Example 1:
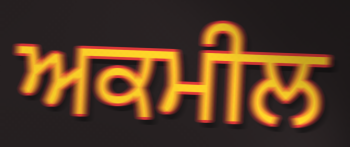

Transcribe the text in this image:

ਅਕਮੀਲ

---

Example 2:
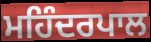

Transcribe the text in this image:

ਮਹਿੰਦਰਪਾਲ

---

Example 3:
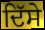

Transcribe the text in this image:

ਦਿੱਸੇ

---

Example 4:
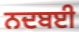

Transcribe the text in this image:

ਨਦਬਈ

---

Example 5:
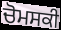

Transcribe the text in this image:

ਚੋਮਸਕੀ